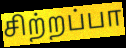
சிற்றப்பா